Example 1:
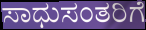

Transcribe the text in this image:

ಸಾಧುಸಂತರಿಗೆ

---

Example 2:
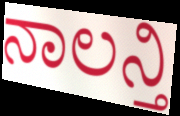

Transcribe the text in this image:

ನಾಲನ್ತಿ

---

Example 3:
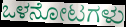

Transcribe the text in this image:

ಒಳನೋಟಗಳು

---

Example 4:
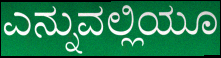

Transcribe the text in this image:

ಎನ್ನುವಲ್ಲಿಯೂ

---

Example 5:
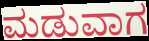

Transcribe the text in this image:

ಮಡುವಾಗ